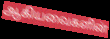
ஆகியவைகளின்